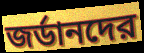
জর্ডানদের